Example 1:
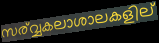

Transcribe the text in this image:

സര്വ്വകലാശാലകളില്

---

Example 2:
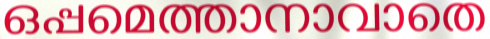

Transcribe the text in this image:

ഒപ്പമെത്താനാവാതെ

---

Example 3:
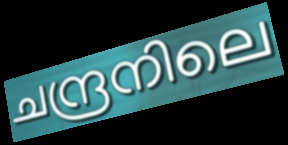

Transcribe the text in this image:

ചന്ദ്രനിലെ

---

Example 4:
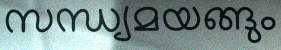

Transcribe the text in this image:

സന്ധ്യമയങ്ങും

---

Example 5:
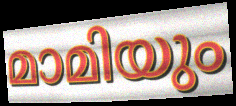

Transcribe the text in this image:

മാമിയും